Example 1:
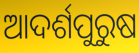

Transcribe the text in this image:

ଆଦର୍ଶପୁରୁଷ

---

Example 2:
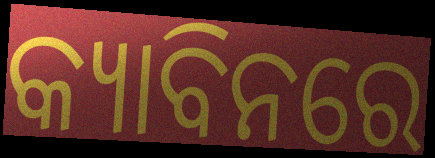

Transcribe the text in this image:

କ୍ୟାବିନରେ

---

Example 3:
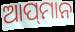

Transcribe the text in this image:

ଆପ୍‌ମାନ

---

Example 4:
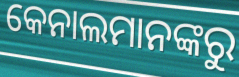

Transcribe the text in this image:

କେନାଲମାନଙ୍କରୁ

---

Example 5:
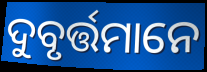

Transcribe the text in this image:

ଦୁବୃର୍ତ୍ତମାନେ